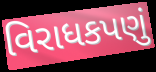
વિરાધકપણું